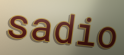
sadio